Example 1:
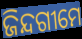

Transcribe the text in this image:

ଜିନ୍ଦଗୀମେ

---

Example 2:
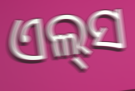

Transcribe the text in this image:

ଏଲ୍‌ସ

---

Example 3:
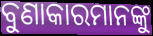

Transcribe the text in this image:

ବୁଣାକାରମାନଙ୍କୁ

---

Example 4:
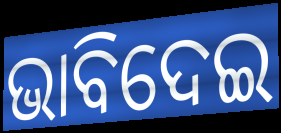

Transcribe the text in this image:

ଭାବିଦେଇ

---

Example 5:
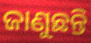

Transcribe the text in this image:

ଜାଣୁଛନ୍ତି